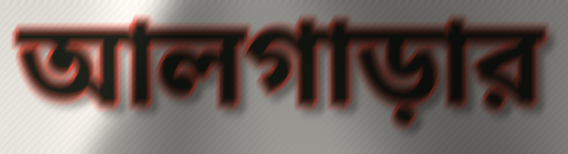
আলগাড়ার